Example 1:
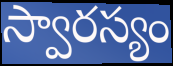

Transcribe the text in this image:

స్వారస్యం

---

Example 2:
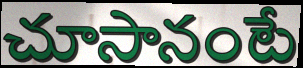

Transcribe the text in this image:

చూసానంటే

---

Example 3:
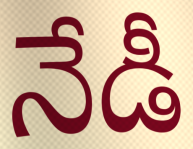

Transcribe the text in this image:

నేడీ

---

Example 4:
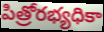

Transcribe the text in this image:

పిత్రోరభ్యధికా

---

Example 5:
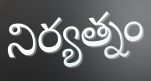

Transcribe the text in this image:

నిర్యత్నం